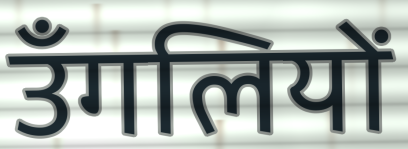
उँगलियों